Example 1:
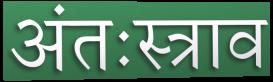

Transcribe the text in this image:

अंतःस्त्राव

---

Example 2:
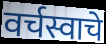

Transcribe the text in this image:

वर्चस्वाचे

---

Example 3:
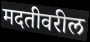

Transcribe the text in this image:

मदतीवरील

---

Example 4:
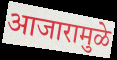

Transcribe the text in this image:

आजारामुळे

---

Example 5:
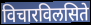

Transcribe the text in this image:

विचारविलसिते